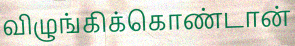
விழுங்கிக்கொண்டான்